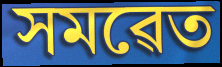
সমৱেত